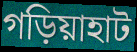
গড়িয়াহাট